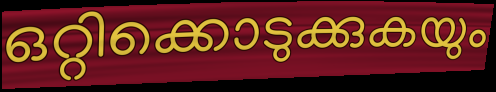
ഒറ്റിക്കൊടുക്കുകയും